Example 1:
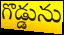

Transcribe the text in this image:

గొడ్డును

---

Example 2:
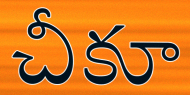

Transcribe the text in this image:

చీకూ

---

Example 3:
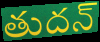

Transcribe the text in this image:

తుదన్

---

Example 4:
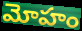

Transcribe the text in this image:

మోహం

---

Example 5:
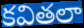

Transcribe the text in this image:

కవితలా